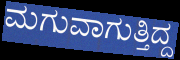
ಮಗುವಾಗುತ್ತಿದ್ದ